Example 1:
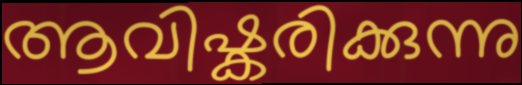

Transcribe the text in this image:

ആവിഷ്കരിക്കുന്നു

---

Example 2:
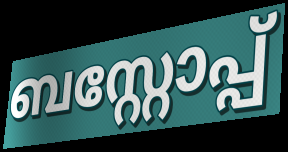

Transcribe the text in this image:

ബസ്റ്റോപ്പ്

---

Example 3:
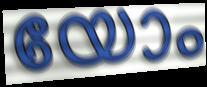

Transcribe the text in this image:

യോം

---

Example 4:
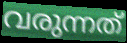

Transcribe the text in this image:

വരുന്നത്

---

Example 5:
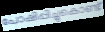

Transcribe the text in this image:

പോഷിപ്പിച്ചുകൊണ്ട്